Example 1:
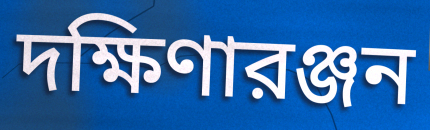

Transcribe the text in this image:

দক্ষিণারঞ্জন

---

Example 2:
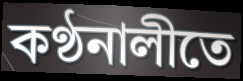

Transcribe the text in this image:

কণ্ঠনালীতে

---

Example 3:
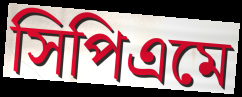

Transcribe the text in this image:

সিপিএমে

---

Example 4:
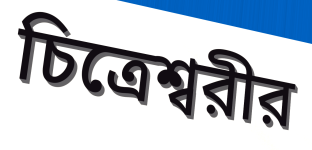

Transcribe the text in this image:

চিত্রেশ্বরীর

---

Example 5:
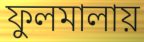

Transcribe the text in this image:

ফুলমালায়